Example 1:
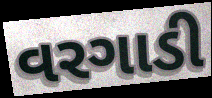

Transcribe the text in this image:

વરગાડી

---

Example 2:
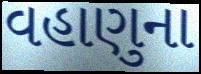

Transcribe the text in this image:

વહાણુના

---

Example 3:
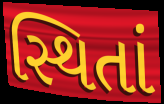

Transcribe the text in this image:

સ્થિતાં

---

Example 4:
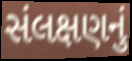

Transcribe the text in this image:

સંલક્ષણનું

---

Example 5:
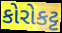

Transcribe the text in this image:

કોરોકટ્ટ